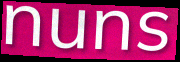
nuns